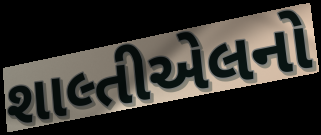
શાલ્તીએલનો